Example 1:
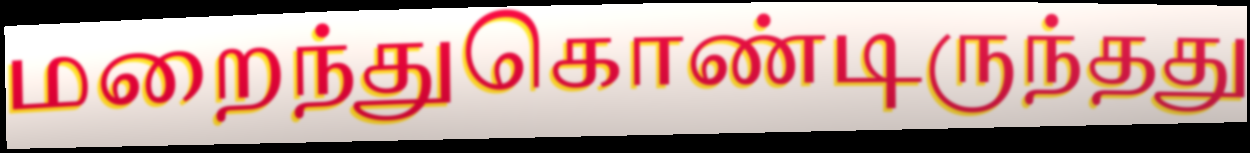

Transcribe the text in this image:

மறைந்துகொண்டிருந்தது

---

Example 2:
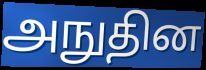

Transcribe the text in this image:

அநுதின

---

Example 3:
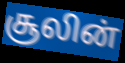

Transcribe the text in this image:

சூலின்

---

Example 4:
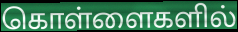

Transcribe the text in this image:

கொள்ளைகளில்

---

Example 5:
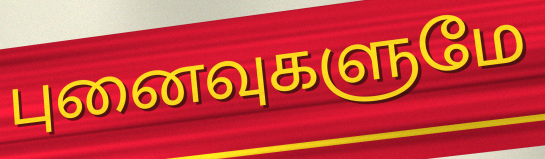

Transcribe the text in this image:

புனைவுகளுமே